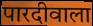
पारदीवाला